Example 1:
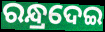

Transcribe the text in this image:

ରନ୍ଧ୍ରଦେଇ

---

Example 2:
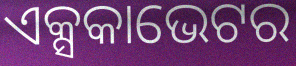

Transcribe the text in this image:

ଏକ୍ସକାଭେଟର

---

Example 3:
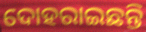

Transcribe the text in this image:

ଦୋହରାଇଛନ୍ତି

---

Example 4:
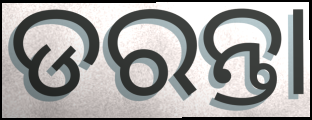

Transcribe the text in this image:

ଡରନ୍ତା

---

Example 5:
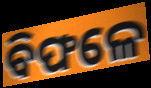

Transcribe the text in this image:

ବିଫଳେ